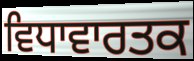
ਵਿਧਾਵਾਰਤਕ